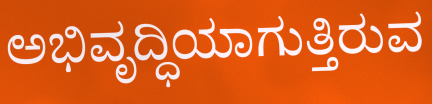
ಅಭಿವೃದ್ಧಿಯಾಗುತ್ತಿರುವ